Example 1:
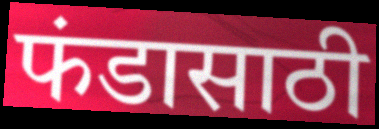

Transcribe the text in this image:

फंडासाठी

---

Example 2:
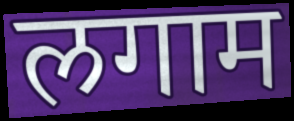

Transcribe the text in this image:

लगाम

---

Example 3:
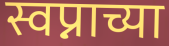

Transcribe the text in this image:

स्वप्नाच्या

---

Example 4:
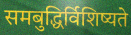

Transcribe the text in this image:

समबुद्धिर्विशिष्यते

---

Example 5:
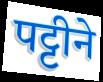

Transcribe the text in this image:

पट्टीने